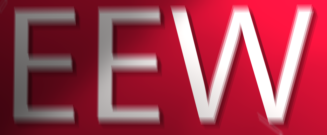
EEW